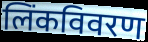
लिंकविवरण